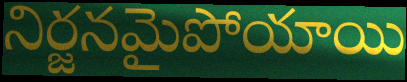
నిర్జనమైపోయాయి